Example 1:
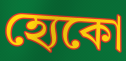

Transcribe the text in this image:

হ্যেকো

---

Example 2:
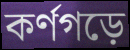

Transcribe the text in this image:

কর্ণগড়ে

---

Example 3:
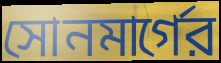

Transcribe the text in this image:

সোনমার্গের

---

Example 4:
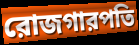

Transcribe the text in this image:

রোজগারপতি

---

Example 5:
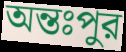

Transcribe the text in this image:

অন্তঃপুর